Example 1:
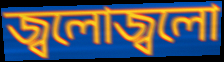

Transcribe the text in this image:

জ্বলোজ্বলো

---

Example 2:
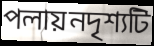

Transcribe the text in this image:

পলায়নদৃশ্যটি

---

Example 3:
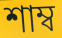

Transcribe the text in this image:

শাম্ব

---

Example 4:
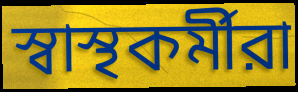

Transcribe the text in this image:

স্বাস্থকর্মীরা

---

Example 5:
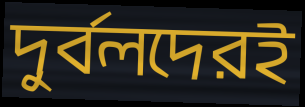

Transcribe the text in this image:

দুর্বলদেরই